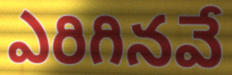
ఎరిగినవే